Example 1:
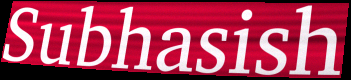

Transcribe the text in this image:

Subhasish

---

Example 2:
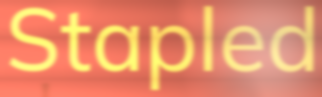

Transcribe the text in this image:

Stapled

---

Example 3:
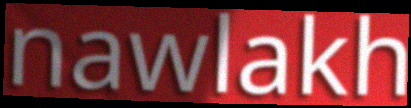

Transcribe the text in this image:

nawlakh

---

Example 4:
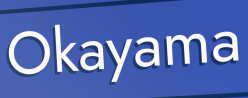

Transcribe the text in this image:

Okayama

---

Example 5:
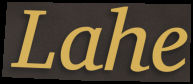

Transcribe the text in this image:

Lahe